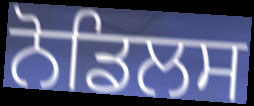
ਨੋਡਿਲਸ